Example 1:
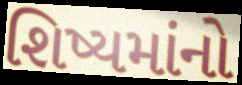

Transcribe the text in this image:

શિષ્યમાંનો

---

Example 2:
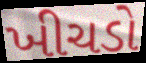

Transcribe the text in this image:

ખીચડો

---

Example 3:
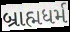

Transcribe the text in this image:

બ્રાહ્મધર્મ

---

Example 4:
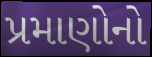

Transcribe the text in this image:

પ્રમાણોનો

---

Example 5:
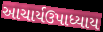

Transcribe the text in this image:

આચાર્યઉપાધ્યાય